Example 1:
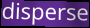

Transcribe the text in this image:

disperse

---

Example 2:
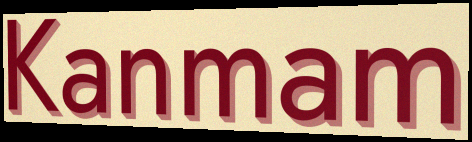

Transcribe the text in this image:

Kanmam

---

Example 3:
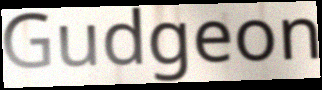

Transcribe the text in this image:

Gudgeon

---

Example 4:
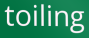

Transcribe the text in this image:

toiling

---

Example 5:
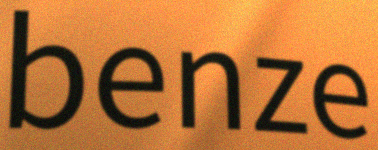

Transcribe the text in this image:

benze